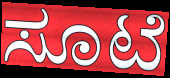
ಸೂಟೆ